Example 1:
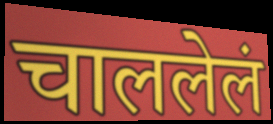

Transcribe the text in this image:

चाललेलं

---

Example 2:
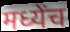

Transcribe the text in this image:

मध्येंच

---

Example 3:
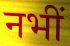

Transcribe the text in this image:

नभीं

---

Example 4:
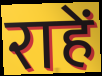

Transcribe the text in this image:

राहें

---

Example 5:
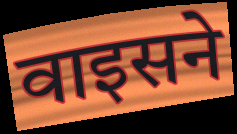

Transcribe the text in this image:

वाइसने